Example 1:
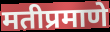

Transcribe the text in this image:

मतीप्रमाणे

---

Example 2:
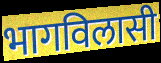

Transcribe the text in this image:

भागविलासी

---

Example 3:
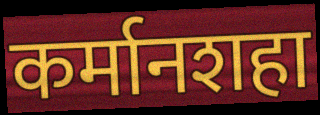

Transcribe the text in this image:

कर्मानशहा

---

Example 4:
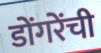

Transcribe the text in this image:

डोंगरेंची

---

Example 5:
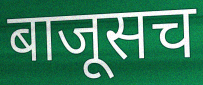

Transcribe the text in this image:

बाजूसच